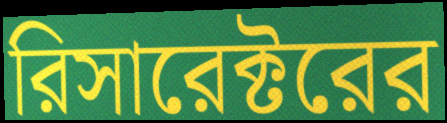
রিসারেক্টরের